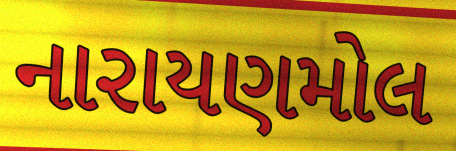
નારાયણમોલ